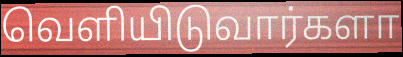
வெளியிடுவார்களா